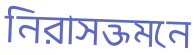
নিরাসক্তমনে